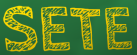
SETE